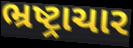
ભ્રષ્ટ્રાચાર